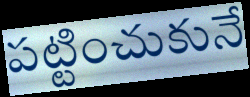
పట్టించుకునే